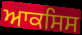
ਆਕਸਿਸ